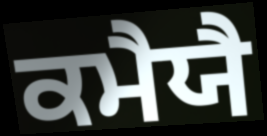
ਕਮੈਯੈ